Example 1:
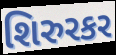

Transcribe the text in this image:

શિરુરકર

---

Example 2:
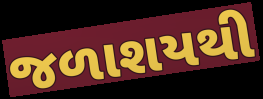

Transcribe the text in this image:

જળાશયથી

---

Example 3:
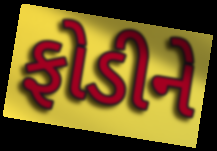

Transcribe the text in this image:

ફોડીને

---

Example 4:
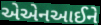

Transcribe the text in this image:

એએનઆઈને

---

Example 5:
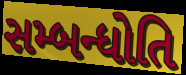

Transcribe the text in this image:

સમ્બન્ધોતિ